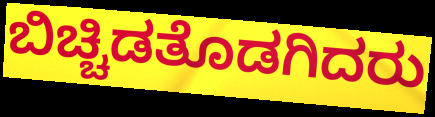
ಬಿಚ್ಚಿಡತೊಡಗಿದರು